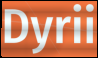
Dyrii